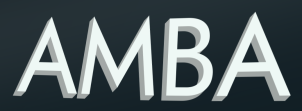
AMBA